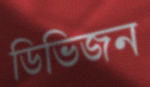
ডিভিজন